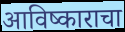
आविष्काराचा